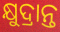
କ୍ଷୁଦ୍ରାନ୍ତ